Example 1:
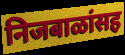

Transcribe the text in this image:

निजबाळांसह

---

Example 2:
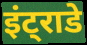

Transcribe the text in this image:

इंट्राडे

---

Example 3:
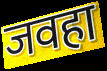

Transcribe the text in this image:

जवहा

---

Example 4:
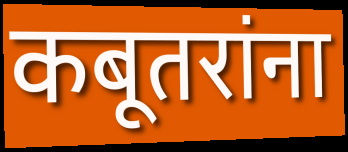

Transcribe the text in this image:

कबूतरांना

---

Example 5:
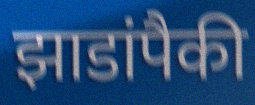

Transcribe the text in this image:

झाडांपैकी